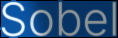
Sobel